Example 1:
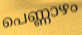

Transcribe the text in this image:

പെണ്ണാഴം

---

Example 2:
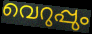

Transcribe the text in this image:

വെറുപ്പും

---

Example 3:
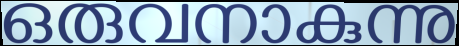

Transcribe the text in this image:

ഒരുവനാകുന്നു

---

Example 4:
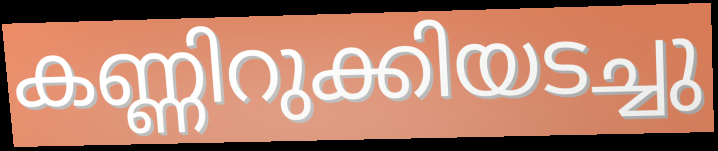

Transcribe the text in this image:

കണ്ണിറുക്കിയടച്ചു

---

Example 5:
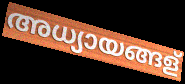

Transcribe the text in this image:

അധ്യായങ്ങള്